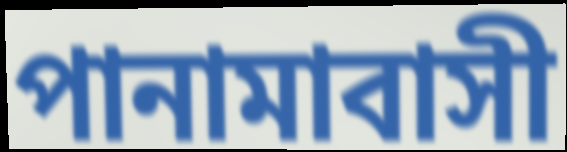
পানামাবাসী